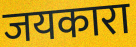
जयकारा